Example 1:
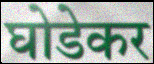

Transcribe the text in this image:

घोडेकर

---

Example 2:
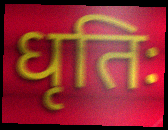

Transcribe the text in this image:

धृतिः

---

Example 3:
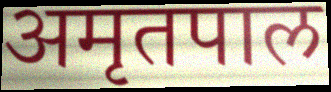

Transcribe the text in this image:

अमृतपाल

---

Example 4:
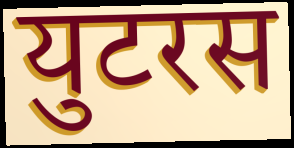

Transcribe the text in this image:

युटरस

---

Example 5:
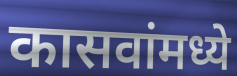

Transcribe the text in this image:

कासवांमध्ये